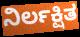
ನಿರ್ಲಕ್ಷಿತ